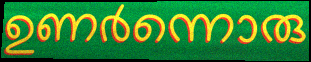
ഉണർന്നൊരു